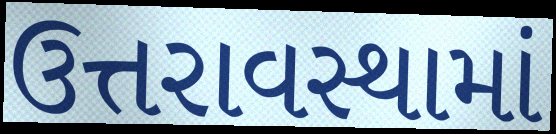
ઉત્તરાવસ્થામાં